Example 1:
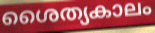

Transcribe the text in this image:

ശൈത്യകാലം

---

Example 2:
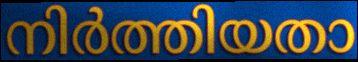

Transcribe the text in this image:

നിർത്തിയതാ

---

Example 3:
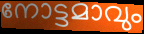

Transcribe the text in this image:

നോട്ടമാവും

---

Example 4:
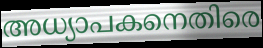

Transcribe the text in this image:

അധ്യാപകനെതിരെ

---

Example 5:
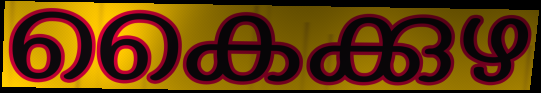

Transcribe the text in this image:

കൈക്കുഴ